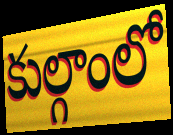
కుల్గాంలో